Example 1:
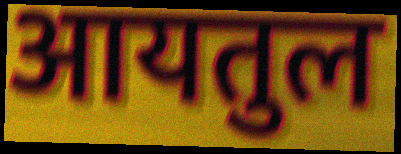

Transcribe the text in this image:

आयतुल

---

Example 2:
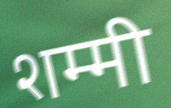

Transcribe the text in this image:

शम्मी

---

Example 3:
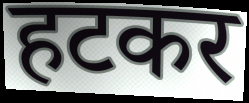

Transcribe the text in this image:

हटकर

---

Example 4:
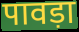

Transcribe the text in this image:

पावड़ा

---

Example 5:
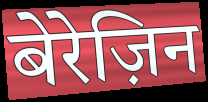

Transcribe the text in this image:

बेरेज़िन